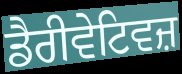
ਡੈਰੀਵੇਟਿਵਜ਼